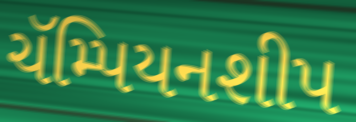
ચૅમ્પિયનશીપ